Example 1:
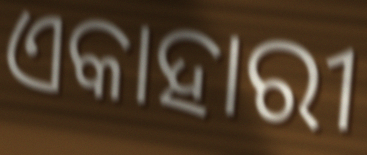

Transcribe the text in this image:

ଏକାହାରୀ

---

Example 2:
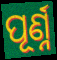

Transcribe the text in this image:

ପୂର୍ଣ୍ନ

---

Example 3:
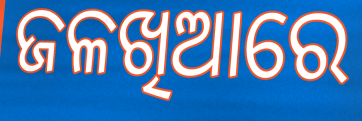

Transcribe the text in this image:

ଜଳଖିଆରେ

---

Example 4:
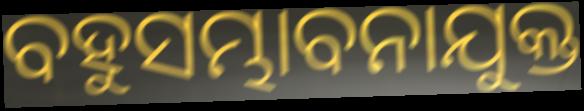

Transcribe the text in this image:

ବହୁସମ୍ଭାବନାଯୁକ୍ତ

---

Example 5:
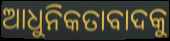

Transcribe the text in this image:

ଆଧୁନିକତାବାଦକୁ